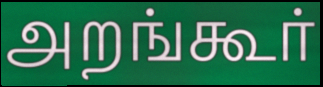
அறங்கூர்